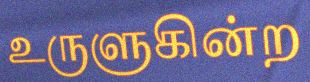
உருளுகின்ற